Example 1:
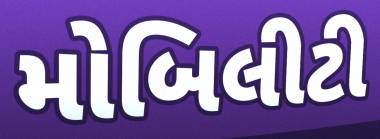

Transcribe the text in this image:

મોબિલીટી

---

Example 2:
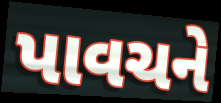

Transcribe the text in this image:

પાવચને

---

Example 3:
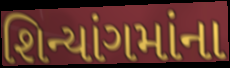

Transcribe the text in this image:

શિન્યાંગમાંના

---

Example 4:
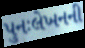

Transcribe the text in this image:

પુનઃલેખનની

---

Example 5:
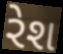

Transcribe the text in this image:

રેશ